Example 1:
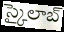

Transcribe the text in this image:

స్కైలాబ్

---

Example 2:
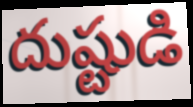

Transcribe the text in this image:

దుష్టుడి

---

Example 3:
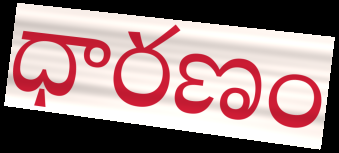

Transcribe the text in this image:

ధారణం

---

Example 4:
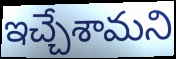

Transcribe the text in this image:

ఇచ్చేశామని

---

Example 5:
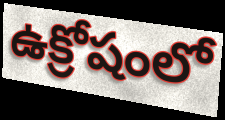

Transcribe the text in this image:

ఉక్రోషంలో